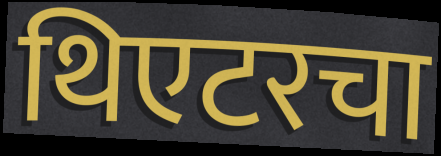
थिएटरचा